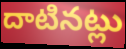
దాటినట్లు